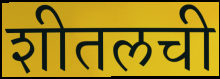
शीतलची